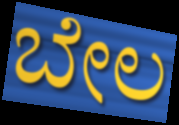
ಬೇಲ